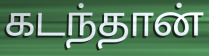
கடந்தான்